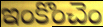
ఇంకొంచెం